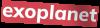
exoplanet